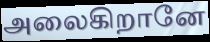
அலைகிறானே